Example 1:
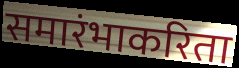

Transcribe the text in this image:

समारंभाकरिता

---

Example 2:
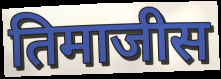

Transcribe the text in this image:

तिमाजीस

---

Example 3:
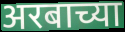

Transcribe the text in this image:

अरबाच्या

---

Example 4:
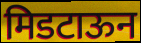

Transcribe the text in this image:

मिडटाऊन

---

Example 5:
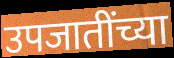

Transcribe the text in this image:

उपजातींच्या